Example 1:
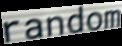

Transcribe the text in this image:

random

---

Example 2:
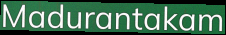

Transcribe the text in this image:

Madurantakam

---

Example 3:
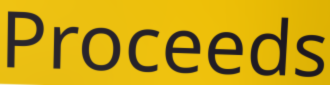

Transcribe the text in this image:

Proceeds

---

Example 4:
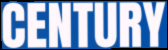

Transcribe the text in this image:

CENTURY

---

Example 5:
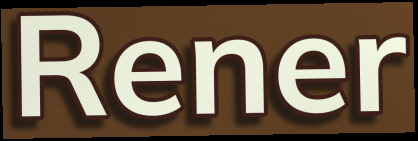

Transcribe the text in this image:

Rener